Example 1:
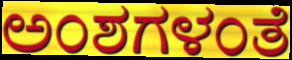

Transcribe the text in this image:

ಅಂಶಗಳಂತೆ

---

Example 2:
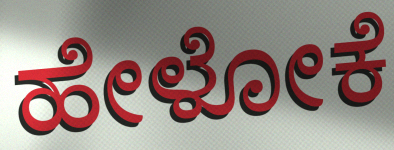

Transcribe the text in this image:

ಹೇಳೋಕೆ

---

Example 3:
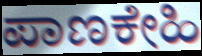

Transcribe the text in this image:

ಪಾಣಕೇಹಿ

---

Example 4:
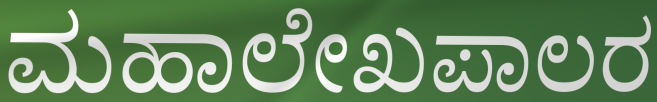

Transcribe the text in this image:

ಮಹಾಲೇಖಪಾಲರ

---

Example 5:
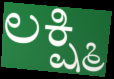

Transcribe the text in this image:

ಲಕ್ಷ್ಮಿ